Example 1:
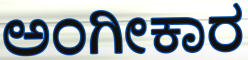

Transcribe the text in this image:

ಅಂಗೀಕಾರ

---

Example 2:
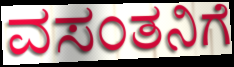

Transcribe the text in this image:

ವಸಂತನಿಗೆ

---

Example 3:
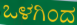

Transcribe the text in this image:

ಒಳಗಿಂದ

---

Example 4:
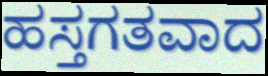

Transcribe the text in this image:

ಹಸ್ತಗತವಾದ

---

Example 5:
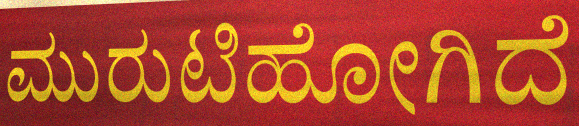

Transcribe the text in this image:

ಮುರುಟಿಹೋಗಿದೆ